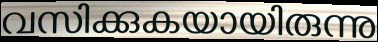
വസിക്കുകയായിരുന്നു